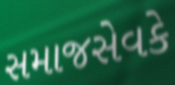
સમાજસેવકે